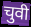
चुवी